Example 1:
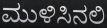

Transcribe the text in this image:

ಮುಳಿಸಿನಲಿ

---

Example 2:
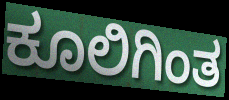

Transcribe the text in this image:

ಕೂಲಿಗಿಂತ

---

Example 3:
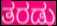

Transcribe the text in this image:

ತರಡು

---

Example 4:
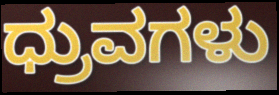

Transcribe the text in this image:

ಧ್ರುವಗಳು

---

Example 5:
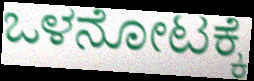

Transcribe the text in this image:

ಒಳನೋಟಕ್ಕೆ